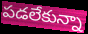
పడలేకున్నా